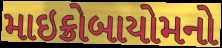
માઇક્રોબાયોમનો